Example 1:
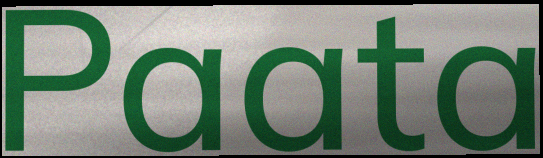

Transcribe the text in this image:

Paata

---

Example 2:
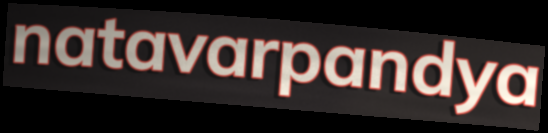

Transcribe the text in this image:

natavarpandya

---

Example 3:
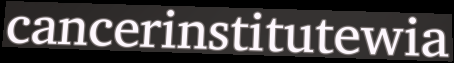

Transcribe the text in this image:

cancerinstitutewia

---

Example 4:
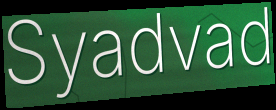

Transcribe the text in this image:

Syadvad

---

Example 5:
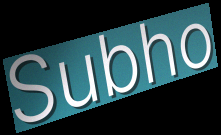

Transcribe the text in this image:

Subho